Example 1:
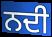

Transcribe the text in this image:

ਨਦੀ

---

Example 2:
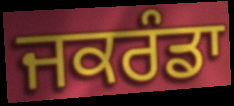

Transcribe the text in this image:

ਜਕਰੰਡਾ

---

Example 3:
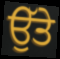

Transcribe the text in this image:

ਉੱਤੇ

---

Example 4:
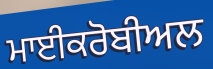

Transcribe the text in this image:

ਮਾਈਕਰੋਬੀਅਲ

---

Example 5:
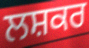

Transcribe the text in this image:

ਲਸ਼ਕਰ